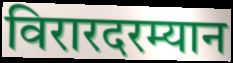
विरारदरम्यान